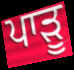
ਪਾੜੂ